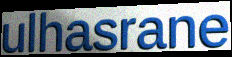
ulhasrane